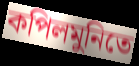
কপিলমুনিতে